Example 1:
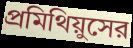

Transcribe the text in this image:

প্রমিথিয়ুসের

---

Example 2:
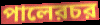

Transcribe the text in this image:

পালেরচর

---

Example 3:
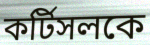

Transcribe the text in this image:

কর্টিসলকে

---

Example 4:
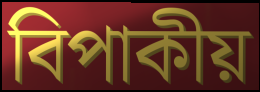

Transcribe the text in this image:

বিপাকীয়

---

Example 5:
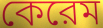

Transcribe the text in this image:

কেরেম